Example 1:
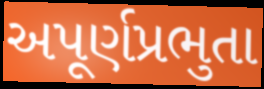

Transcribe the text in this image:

અપૂર્ણપ્રભુતા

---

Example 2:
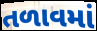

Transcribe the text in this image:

તળાવમાં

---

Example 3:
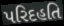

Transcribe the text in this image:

પરિદહતિ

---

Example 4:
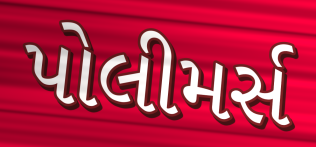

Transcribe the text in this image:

પોલીમર્સ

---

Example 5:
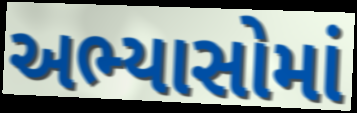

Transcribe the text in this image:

અભ્યાસોમાં